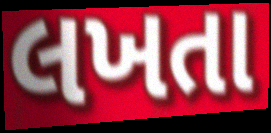
લખતા